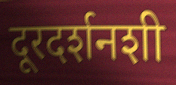
दूरदर्शनशी